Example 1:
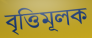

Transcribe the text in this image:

বৃত্তিমূলক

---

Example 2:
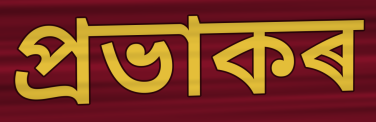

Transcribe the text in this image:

প্ৰভাকৰ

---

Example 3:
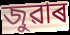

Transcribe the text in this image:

জুৱাৰ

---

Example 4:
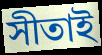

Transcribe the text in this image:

সীতাই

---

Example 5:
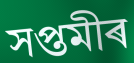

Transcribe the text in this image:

সপ্তমীৰ